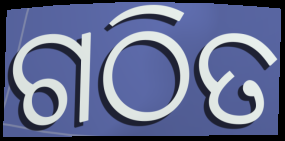
ଗଠିତ